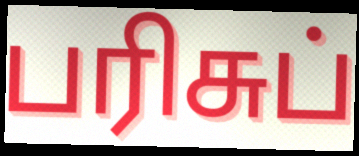
பரிசுப்